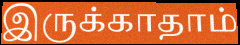
இருக்காதாம்